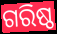
ଗରିଷ୍ଠ